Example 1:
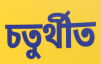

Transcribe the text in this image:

চতুৰ্থীত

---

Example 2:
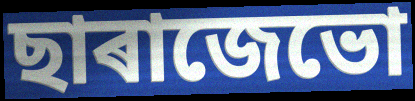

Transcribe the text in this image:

ছাৰাজেভো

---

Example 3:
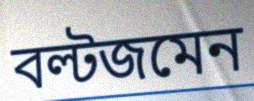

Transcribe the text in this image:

বল্টজমেন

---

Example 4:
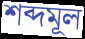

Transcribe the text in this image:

শব্দমূল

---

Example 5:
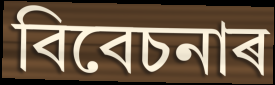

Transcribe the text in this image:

বিবেচনাৰ